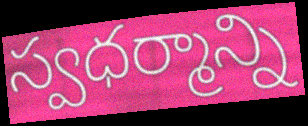
స్వధర్మాన్ని